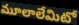
మూలాలేమిటో